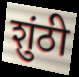
शुंठी